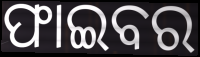
ଫାଇବର